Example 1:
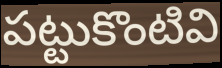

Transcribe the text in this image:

పట్టుకొంటివి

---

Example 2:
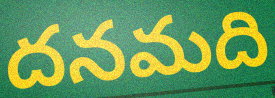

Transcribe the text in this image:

దనమది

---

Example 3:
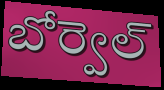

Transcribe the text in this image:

బోర్వెల్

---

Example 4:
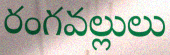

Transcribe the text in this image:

రంగవల్లులు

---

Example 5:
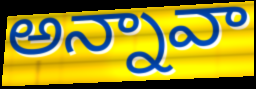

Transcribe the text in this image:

అన్నావా